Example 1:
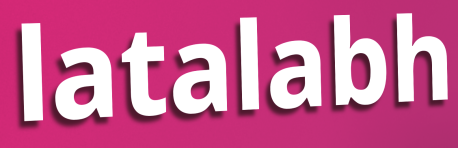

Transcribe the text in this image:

latalabh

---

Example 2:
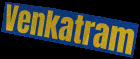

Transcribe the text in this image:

Venkatram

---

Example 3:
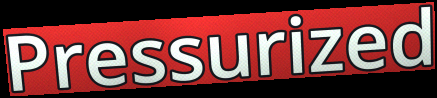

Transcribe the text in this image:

Pressurized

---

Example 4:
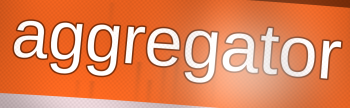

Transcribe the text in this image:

aggregator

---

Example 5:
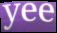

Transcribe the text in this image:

yee